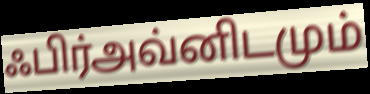
ஃபிர்அவ்னிடமும்